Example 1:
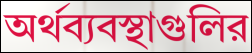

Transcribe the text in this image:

অর্থব্যবস্থাগুলির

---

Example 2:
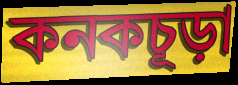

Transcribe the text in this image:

কনকচূড়া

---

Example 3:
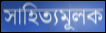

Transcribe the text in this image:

সাহিত্যমূলক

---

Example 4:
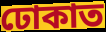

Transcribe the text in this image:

ঢোকাত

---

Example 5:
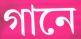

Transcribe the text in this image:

গানে